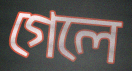
গেলে